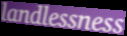
landlessness